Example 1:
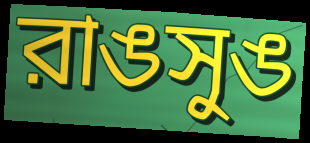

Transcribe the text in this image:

রাঙসুঙ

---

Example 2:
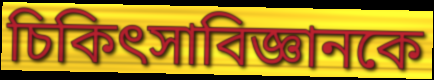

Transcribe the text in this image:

চিকিৎসাবিজ্ঞানকে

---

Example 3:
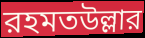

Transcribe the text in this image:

রহমতউল্লার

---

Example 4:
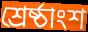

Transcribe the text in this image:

শ্রেষ্ঠাংশ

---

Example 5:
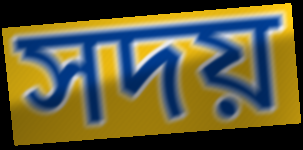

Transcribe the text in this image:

সদয়